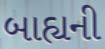
બાહ્યની